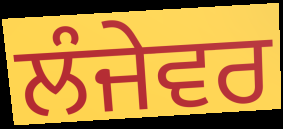
ਲੰਜੇਵਰ